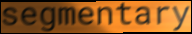
segmentary